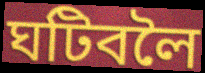
ঘটিবলৈ